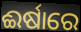
ଈର୍ଷାରେ